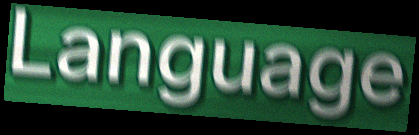
Language